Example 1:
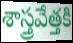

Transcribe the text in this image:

శాస్త్రవేత్తకి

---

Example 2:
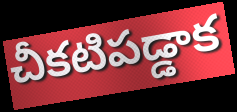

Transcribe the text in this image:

చీకటిపడ్డాక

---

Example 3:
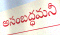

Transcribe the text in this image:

అసంబద్ధమనీ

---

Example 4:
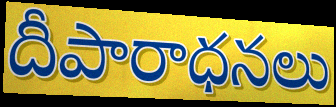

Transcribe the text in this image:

దీపారాధనలు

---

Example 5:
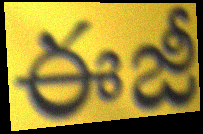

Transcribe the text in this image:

ఈజీ